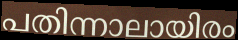
പതിന്നാലായിരം